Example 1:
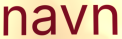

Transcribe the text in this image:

navn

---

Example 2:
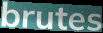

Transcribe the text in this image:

brutes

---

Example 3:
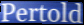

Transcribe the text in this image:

Pertold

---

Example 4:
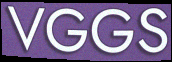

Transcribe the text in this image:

VGGS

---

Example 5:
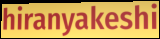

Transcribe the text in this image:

hiranyakeshi